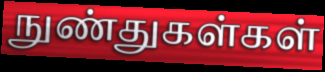
நுண்துகள்கள்